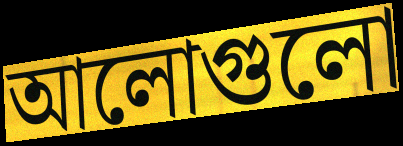
আলোগুলো